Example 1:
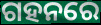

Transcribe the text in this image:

ଗହନରେ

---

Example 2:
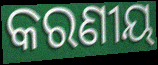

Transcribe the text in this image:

କରଣୀୟ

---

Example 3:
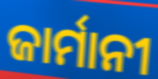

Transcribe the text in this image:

ଜାର୍ମାନୀ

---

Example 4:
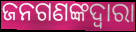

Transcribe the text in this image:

ଜନଗଣଙ୍କଦ୍ୱାରା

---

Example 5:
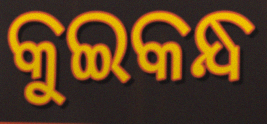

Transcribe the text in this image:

କୁଇକନ୍ଧ